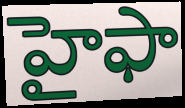
హైఫా